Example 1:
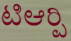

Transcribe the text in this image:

ಟಿಆರ್‍ಪಿ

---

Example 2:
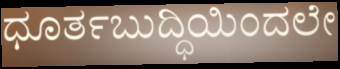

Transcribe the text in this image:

ಧೂರ್ತಬುದ್ಧಿಯಿಂದಲೇ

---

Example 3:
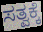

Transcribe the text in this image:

ಸತ್ವಕ್ಕೆ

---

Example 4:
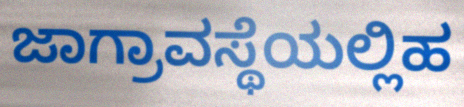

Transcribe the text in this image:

ಜಾಗ್ರಾವಸ್ಥೆಯಲ್ಲಿಹ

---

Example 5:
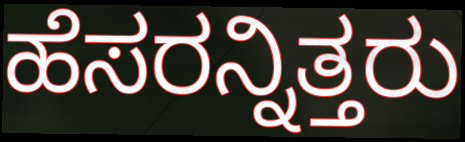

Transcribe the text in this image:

ಹೆಸರನ್ನಿತ್ತರು